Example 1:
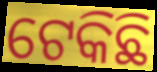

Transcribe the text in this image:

ଟେକିଛି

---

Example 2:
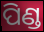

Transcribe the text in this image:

ପିଣ୍ଡ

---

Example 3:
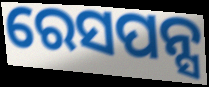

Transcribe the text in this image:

ରେସପନ୍ସ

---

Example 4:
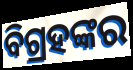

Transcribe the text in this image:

ବିଗ୍ରହଙ୍କର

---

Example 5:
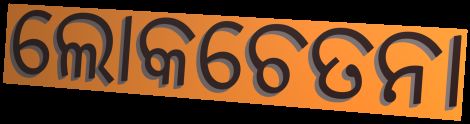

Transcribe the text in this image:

ଲୋକଚେତନା